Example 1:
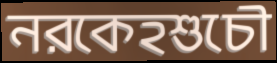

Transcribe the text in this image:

নরকেহশুচৌ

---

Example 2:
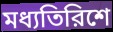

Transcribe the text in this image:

মধ্যতিরিশে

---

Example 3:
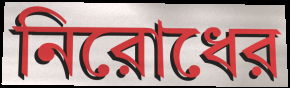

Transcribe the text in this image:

নিরোধের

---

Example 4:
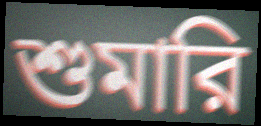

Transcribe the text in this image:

শুমারি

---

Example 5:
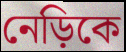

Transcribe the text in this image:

নেড়িকে